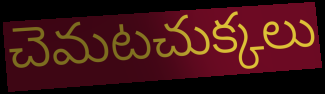
చెమటచుక్కలు